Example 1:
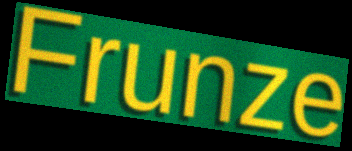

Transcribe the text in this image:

Frunze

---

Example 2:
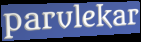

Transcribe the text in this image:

parulekar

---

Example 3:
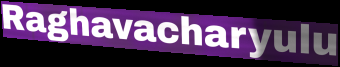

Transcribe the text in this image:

Raghavacharyulu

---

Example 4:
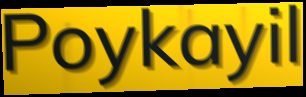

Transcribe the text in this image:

Poykayil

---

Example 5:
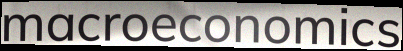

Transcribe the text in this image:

macroeconomics